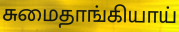
சுமைதாங்கியாய்